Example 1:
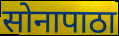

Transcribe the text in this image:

सोनापाठा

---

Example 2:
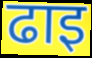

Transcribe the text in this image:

ढाइ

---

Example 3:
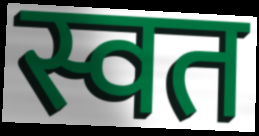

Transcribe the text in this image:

स्वत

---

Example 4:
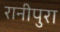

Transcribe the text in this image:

रानीपुरा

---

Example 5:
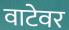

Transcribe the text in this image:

वाटेवर